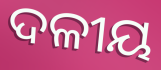
ଦଳୀୟ